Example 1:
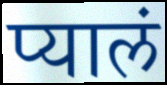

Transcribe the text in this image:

प्यालं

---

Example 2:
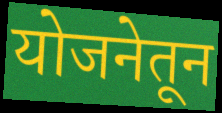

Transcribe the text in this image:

योजनेतून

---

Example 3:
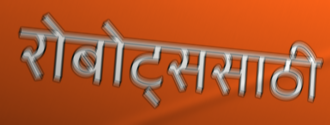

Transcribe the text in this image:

रोबोट्ससाठी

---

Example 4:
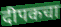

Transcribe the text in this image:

दीपकचा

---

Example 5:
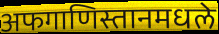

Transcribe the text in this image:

अफगाणिस्तानमधले